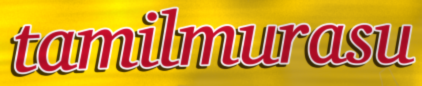
tamilmurasu